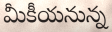
మీకీయనున్న